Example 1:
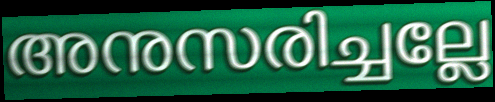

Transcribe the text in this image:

അനുസരിച്ചല്ലേ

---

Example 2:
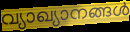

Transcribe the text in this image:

വ്യാഖ്യാനങ്ങൾ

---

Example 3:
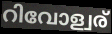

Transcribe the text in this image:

റിവോള്വര്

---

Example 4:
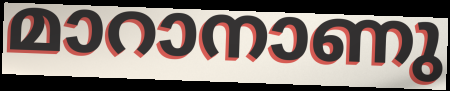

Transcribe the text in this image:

മാറാനാണു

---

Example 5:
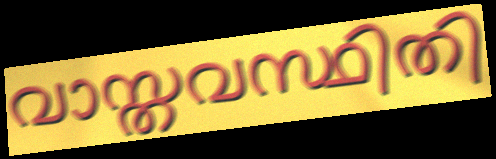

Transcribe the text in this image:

വാസ്തവസ്ഥിതി